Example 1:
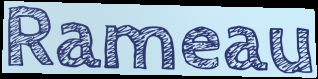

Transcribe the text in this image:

Rameau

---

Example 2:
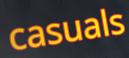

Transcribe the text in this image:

casuals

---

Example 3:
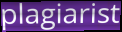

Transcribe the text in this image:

plagiarist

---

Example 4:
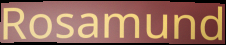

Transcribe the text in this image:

Rosamund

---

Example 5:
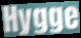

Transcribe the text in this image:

Hygge